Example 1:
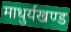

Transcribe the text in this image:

माधुर्यखण्ड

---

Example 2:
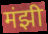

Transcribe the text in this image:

मंझी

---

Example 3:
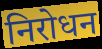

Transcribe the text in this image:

निरोधन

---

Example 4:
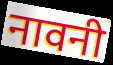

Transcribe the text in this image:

नावनी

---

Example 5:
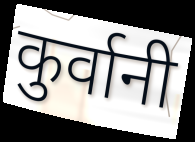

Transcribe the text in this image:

कुर्वानी